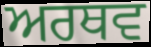
ਅਰਥਵ